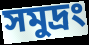
সমুদ্রং